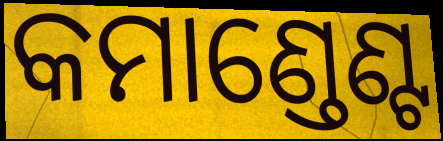
କମାଣ୍ଡେଣ୍ଟ